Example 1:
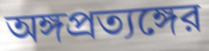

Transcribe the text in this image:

অঙ্গপ্রত্যঙ্গের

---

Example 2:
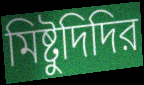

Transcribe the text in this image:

মিষ্টুদিদির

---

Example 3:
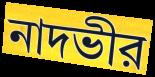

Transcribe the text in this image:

নাদভীর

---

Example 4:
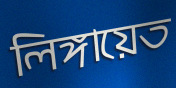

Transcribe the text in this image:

লিঙ্গায়েত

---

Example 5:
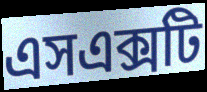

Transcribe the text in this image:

এসএক্সটি